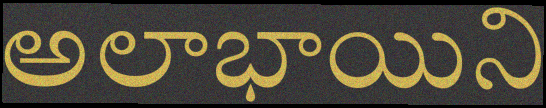
అలాభాయిని